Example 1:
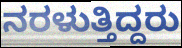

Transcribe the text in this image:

ನರಳುತ್ತಿದ್ದರು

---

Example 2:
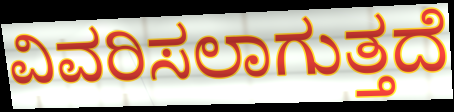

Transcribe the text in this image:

ವಿವರಿಸಲಾಗುತ್ತದೆ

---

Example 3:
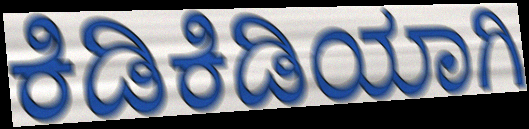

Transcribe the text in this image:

ಕಿಡಿಕಿಡಿಯಾಗಿ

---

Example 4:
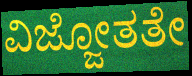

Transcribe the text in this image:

ವಿಜ್ಜೋತತೇ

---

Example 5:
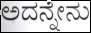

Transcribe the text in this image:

ಅದನ್ನೇನು